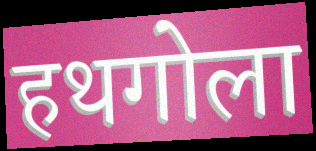
हथगोला